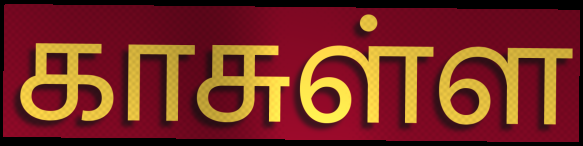
காசுள்ள